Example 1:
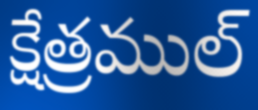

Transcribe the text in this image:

క్షేత్రముల్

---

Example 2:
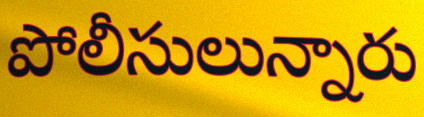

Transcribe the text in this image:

పోలీసులున్నారు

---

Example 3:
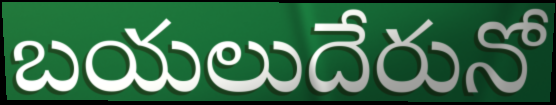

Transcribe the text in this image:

బయలుదేరునో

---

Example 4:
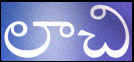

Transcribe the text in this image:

లాచి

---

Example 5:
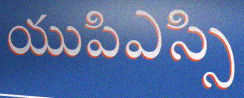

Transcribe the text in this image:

యుపిఎస్సి